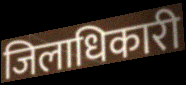
जिलाधिकारी